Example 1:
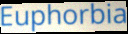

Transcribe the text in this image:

Euphorbia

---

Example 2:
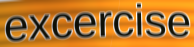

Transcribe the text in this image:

excercise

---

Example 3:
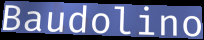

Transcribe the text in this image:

Baudolino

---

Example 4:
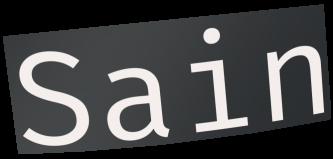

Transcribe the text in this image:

Sain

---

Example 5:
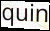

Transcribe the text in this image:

quin